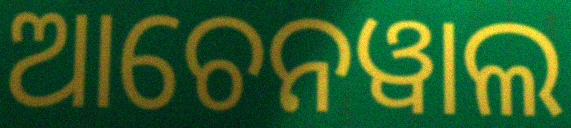
ଆଚେନୱାଲ